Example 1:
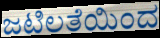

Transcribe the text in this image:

ಜಟಿಲತೆಯಿಂದ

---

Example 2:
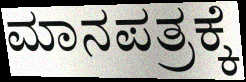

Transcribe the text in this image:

ಮಾನಪತ್ರಕ್ಕೆ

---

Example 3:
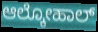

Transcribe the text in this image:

ಆಲ್ಕೋಹಾಲ್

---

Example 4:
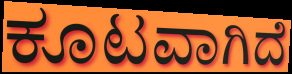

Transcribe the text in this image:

ಕೂಟವಾಗಿದೆ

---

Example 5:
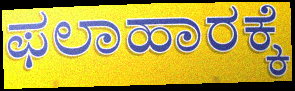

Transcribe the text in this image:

ಫಲಾಹಾರಕ್ಕೆ